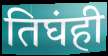
तिघंही